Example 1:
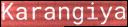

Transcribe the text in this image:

Karangiya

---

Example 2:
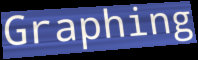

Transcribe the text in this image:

Graphing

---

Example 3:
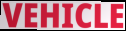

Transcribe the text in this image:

VEHICLE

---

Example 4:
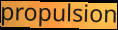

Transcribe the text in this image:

propulsion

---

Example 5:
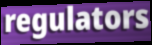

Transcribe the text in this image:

regulators